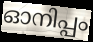
ഓനിപ്പം